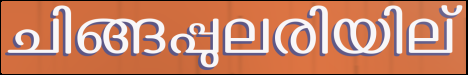
ചിങ്ങപ്പുലരിയില്